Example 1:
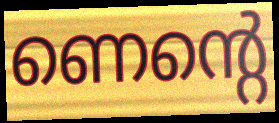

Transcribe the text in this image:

ണെന്റെ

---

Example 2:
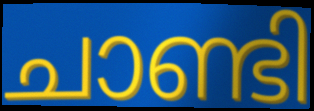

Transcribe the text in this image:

ചാണ്ടി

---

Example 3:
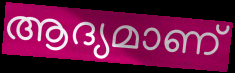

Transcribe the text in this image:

ആദ്യമാണ്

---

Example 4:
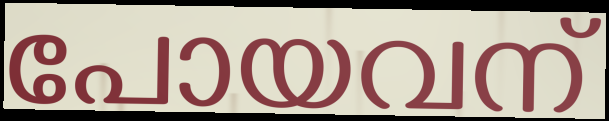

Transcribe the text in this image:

പോയവന്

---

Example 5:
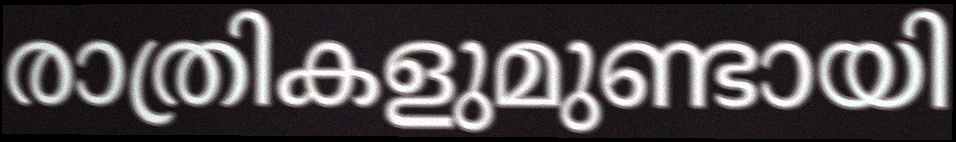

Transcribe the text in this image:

രാത്രികളുമുണ്ടായി